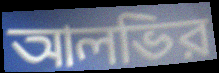
আলভির